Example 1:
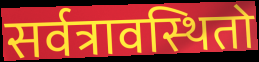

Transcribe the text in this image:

सर्वत्रावस्थितो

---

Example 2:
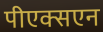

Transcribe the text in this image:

पीएक्सएन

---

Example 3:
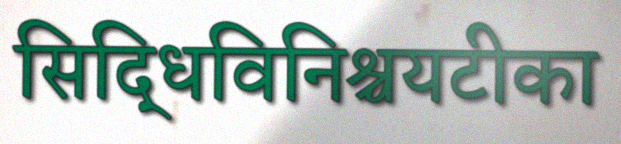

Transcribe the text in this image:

सिद्धिविनिश्चयटीका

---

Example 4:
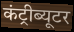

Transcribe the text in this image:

कंट्रीब्यूटर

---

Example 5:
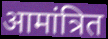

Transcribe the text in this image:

आमांत्रित